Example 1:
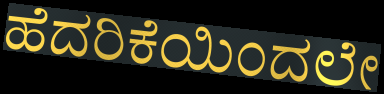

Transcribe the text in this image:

ಹೆದರಿಕೆಯಿಂದಲೇ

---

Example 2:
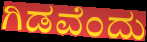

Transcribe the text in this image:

ಗಿಡವೆಂದು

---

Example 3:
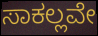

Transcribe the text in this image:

ಸಾಕಲ್ಲವೇ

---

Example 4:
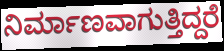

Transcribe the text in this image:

ನಿರ್ಮಾಣವಾಗುತ್ತಿದ್ದರೆ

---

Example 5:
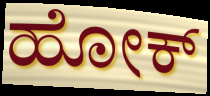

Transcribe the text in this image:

ಹೋಕ್